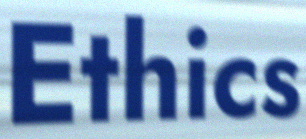
Ethics